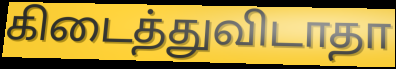
கிடைத்துவிடாதா